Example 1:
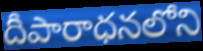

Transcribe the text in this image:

దీపారాధనలోని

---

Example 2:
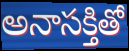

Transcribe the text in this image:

అనాసక్తితో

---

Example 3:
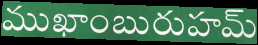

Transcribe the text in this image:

ముఖాంబురుహమ్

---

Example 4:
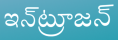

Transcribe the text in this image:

ఇన్‌ట్రూజన్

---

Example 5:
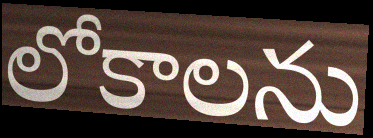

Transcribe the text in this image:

లోకాలను